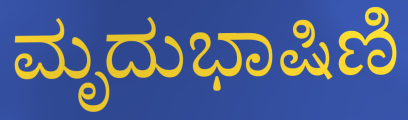
ಮೃದುಭಾಷಿಣಿ